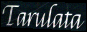
Tarulata